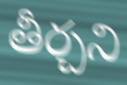
తీర్చని